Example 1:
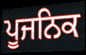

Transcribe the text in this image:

ਪੂਜਨਿਕ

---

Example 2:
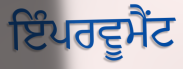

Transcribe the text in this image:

ਇੰਪਰਵੂਮੈਂਟ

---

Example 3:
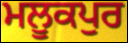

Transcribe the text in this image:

ਮਲੂਕਪੁਰ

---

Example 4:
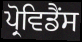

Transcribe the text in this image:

ਪ੍ਰੋਵਿਡੈਂਸ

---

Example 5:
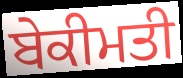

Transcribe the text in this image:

ਬੇਕੀਮਤੀ